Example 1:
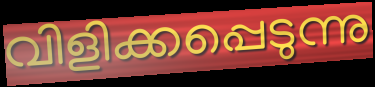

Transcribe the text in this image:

വിളിക്കപ്പെടുന്നു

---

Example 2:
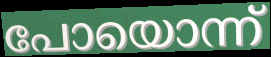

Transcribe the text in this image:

പോയൊന്ന്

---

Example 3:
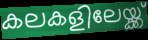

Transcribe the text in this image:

കലകളിലേയ്ക്ക്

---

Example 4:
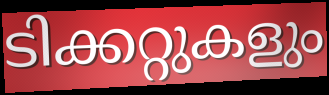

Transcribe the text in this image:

ടിക്കറ്റുകളും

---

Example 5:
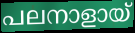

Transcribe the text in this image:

പലനാളായ്